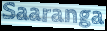
Saaranga